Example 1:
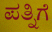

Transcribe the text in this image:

ಪತ್ನಿಗೆ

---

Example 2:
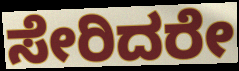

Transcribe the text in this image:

ಸೇರಿದರೇ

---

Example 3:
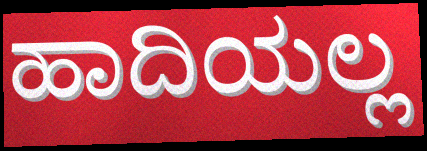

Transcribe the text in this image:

ಹಾದಿಯಲ್ಲ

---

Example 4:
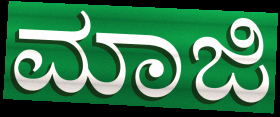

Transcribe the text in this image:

ಮಾಜಿ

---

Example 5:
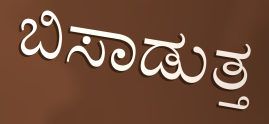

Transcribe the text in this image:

ಬಿಸಾಡುತ್ತ